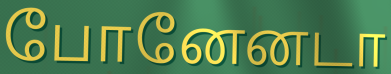
போனேனடா